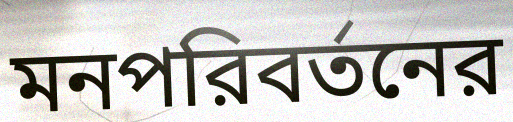
মনপরিবর্তনের